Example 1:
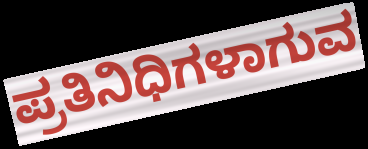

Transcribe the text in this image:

ಪ್ರತಿನಿಧಿಗಳಾಗುವ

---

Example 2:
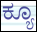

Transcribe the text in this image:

ಕ್ಯೂ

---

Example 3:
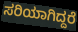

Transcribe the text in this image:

ಸರಿಯಾಗಿದ್ದರೆ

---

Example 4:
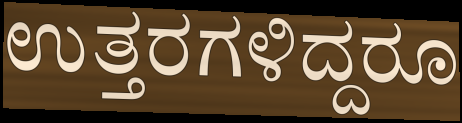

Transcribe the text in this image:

ಉತ್ತರಗಳಿದ್ದರೂ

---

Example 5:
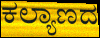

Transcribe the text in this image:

ಕಲ್ಯಾಣದ